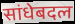
सांधेबदल